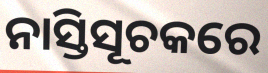
ନାସ୍ତିସୂଚକରେ